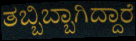
ತಬ್ಬಿಬ್ಬಾಗಿದ್ದಾರೆ